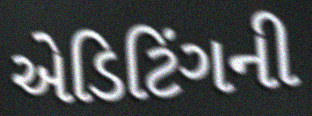
એડિટિંગની